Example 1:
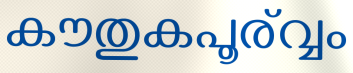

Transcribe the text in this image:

കൗതുകപൂര്വ്വം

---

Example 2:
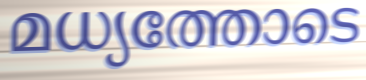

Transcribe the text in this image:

മധ്യത്തോടെ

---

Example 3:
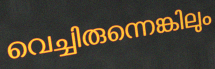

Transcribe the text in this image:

വെച്ചിരുന്നെങ്കിലും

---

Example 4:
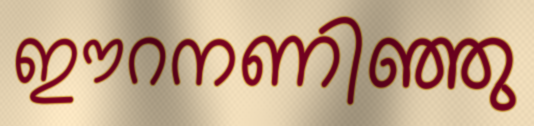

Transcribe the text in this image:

ഈറനണിഞ്ഞു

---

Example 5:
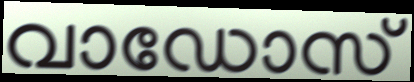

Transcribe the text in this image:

വാഡോസ്